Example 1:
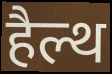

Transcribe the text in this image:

हैल्थ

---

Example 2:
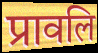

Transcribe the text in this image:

प्रावलि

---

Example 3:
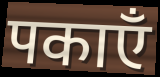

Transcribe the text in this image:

पकाएँ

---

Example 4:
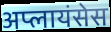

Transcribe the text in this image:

अप्लायंसेस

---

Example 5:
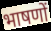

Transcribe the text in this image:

भाषणों